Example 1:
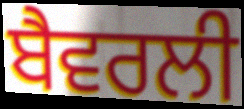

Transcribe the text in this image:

ਬੈਵਰਲੀ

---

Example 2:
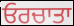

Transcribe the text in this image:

ਓਰਚਾਤਾ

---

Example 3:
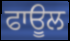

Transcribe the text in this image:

ਫਾਊਲ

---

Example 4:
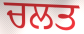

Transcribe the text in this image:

ਚਲਤ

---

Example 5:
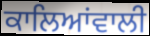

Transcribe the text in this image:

ਕਾਲਿਆਂਵਾਲੀ